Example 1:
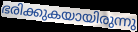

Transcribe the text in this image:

ഭരിക്കുകയായിരുന്നു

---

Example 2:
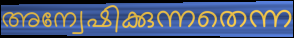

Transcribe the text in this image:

അന്വേഷിക്കുന്നതെന്ന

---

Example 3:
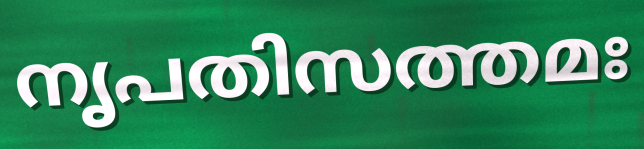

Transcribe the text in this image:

നൃപതിസത്തമഃ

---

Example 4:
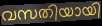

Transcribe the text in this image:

വസതിയായി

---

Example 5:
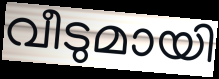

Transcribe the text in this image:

വീടുമായി